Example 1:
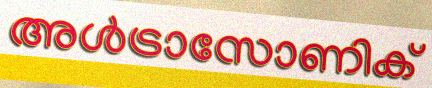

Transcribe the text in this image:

അൾട്രാസോണിക്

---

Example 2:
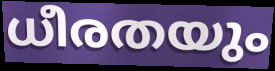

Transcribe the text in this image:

ധീരതയും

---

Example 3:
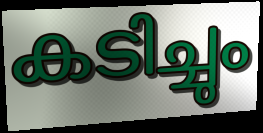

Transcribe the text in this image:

കടിച്ചും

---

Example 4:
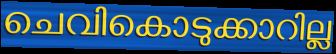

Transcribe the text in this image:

ചെവികൊടുക്കാറില്ല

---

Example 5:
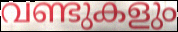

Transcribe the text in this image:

വണ്ടുകളും